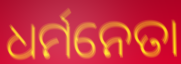
ଧର୍ମନେତା